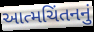
આત્મચિંતનનું